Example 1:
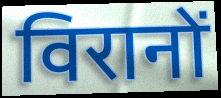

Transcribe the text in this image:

विरानों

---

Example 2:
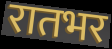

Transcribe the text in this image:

रातभर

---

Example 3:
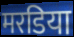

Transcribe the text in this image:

मरडिया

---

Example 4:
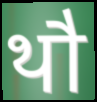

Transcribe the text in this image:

थौ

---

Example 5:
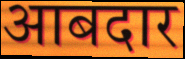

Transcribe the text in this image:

आबदार